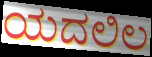
ಯದಲಿಲ